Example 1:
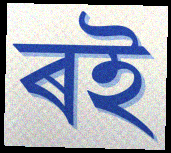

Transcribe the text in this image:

ৰই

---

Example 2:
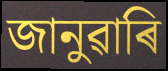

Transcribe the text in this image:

জানুৱাৰি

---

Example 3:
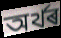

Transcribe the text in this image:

অৰ্থৰ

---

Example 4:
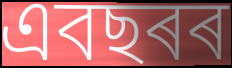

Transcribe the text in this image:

এবছৰৰ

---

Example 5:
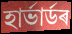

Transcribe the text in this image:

হাৰ্ভাৰ্ডৰ